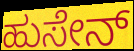
ಹುಸೇನ್